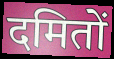
दमितों